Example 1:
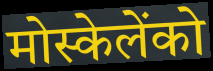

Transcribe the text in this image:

मोस्केलेंको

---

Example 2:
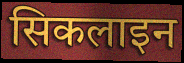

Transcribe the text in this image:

सिकलाइन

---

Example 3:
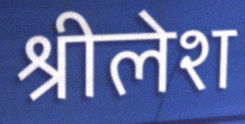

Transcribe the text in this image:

श्रीलेश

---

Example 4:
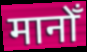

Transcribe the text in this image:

मानोँ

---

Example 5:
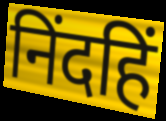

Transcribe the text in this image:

निंदहिं